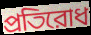
প্রতিরোধ